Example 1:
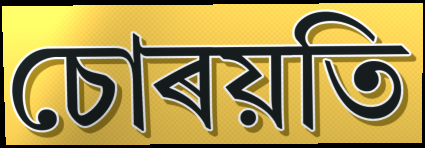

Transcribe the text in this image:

চোৰয়তি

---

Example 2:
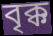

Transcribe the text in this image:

বৃক্ক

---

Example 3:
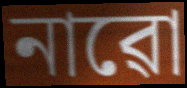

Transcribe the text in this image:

নাৱো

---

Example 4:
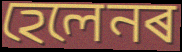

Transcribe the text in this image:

হেলেনৰ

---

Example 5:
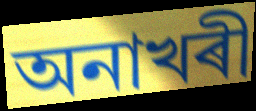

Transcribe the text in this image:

অনাখৰী